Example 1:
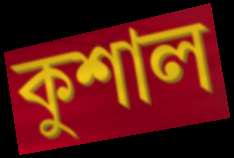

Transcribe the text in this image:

কুশাল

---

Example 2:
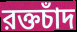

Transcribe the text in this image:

রক্তচাঁদ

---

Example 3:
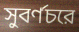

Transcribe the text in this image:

সুবর্ণচরে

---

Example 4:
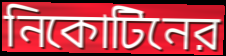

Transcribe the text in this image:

নিকোটিনের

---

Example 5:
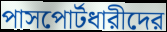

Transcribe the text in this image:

পাসপোর্টধারীদের